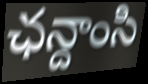
ఛన్దాంసి